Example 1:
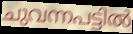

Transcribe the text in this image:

ചുവന്നപട്ടിൽ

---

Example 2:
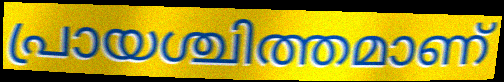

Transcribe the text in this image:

പ്രായശ്ചിത്തമാണ്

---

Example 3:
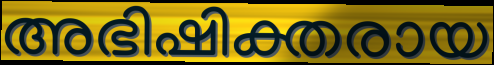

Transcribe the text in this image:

അഭിഷിക്തരായ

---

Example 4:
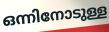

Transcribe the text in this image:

ഒന്നിനോടുള്ള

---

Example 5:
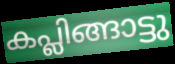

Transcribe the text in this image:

കപ്ലിങ്ങാട്ടു